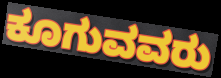
ಕೂಗುವವರು